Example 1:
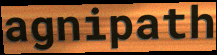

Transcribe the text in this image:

agnipath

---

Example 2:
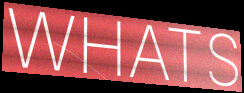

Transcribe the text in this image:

WHATS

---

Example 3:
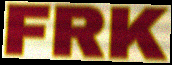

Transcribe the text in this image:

FRK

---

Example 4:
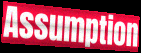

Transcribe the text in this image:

Assumption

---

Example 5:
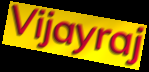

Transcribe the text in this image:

Vijayraj